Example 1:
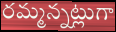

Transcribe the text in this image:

రమ్మన్నట్లుగా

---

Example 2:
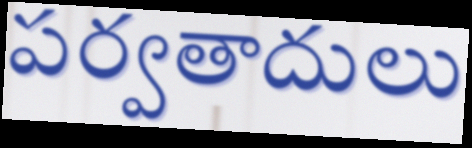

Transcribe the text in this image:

పర్వతాదులు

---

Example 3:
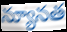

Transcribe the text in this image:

న్యూనత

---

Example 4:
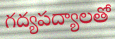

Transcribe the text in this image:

గద్యపద్యాలతో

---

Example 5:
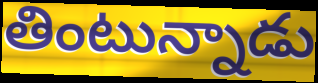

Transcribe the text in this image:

తింటున్నాడు